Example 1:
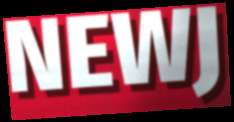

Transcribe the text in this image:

NEWJ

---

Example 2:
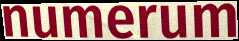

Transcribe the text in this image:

numerum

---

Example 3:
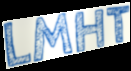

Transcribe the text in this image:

LMHT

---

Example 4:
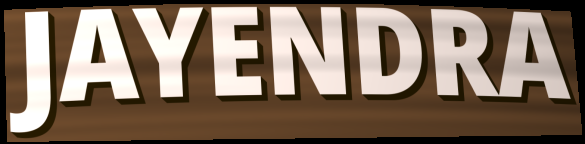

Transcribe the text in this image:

JAYENDRA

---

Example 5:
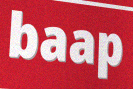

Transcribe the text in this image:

baap